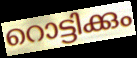
റൊട്ടിക്കും